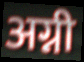
अग्नी